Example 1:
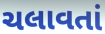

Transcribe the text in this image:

ચલાવતાં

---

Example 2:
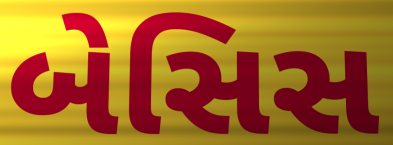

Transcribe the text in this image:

બેસિસ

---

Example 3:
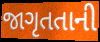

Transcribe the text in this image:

જાગૃતતાની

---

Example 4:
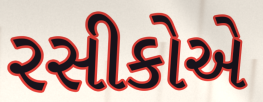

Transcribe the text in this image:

રસીકોએ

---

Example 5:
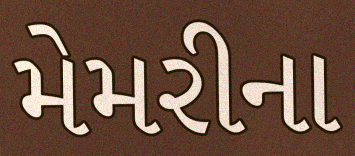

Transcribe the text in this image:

મેમરીના